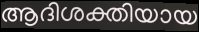
ആദിശക്തിയായ